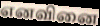
எனவினை